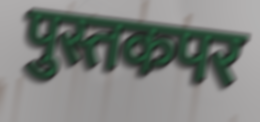
पुस्तकपर